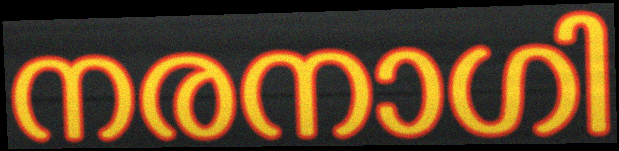
നരനാഗി